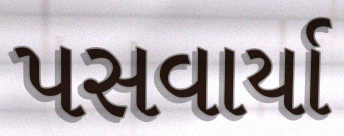
પસવાર્યા